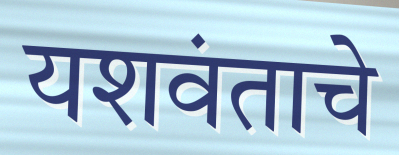
यशवंताचे